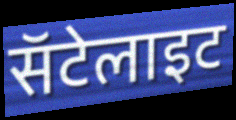
सॅटेलाइट